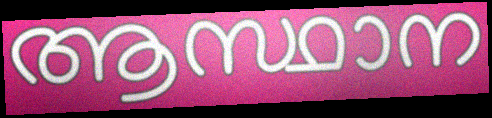
ആസ്ഥാന